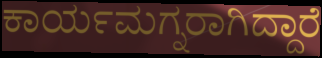
ಕಾರ್ಯಮಗ್ನರಾಗಿದ್ದಾರೆ